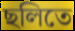
ছলিতে